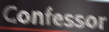
Confessor